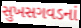
સુખસગવડનાં